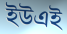
ইউএই